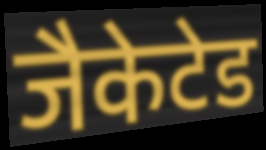
जैकेटेड